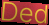
Ded